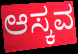
ಆಸ್ಕವ